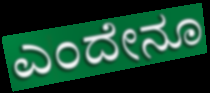
ಎಂದೇನೂ